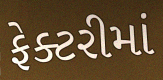
ફેક્ટરીમાં